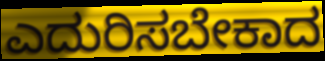
ಎದುರಿಸಬೇಕಾದ